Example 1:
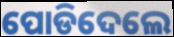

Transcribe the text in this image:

ପୋଡିଦେଲେ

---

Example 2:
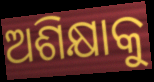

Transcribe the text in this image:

ଅଶିକ୍ଷାକୁ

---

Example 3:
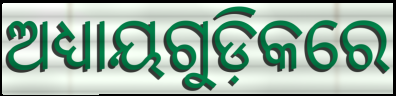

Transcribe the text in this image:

ଅଧ୍ୟାୟଗୁଡ଼ିକରେ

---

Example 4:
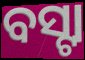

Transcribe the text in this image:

ବସ୍ଟା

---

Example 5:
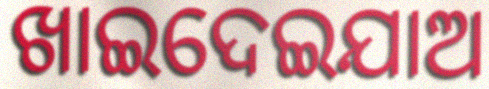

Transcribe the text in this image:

ଖାଇଦେଇଯାଅ